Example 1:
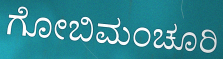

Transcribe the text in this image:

ಗೋಬಿಮಂಚೂರಿ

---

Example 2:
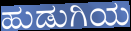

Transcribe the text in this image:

ಹುಡುಗಿಯ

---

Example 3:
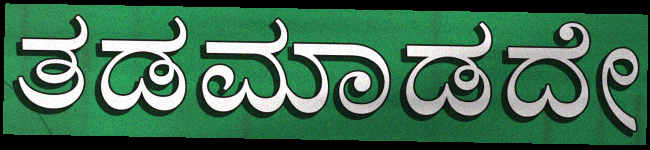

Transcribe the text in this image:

ತಡಮಾಡದೇ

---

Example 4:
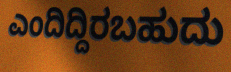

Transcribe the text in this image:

ಎಂದಿದ್ದಿರಬಹುದು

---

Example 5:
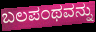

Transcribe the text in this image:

ಬಲಪಂಥವನ್ನು